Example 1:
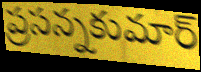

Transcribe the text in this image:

ప్రసన్నకుమార్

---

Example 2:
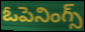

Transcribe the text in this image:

ఓపెనింగ్స్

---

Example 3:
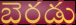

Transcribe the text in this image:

బెరడు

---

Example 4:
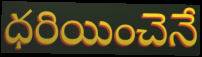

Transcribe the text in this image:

ధరియించెనే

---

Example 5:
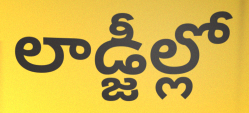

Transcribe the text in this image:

లాడ్జీల్లో